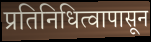
प्रतिनिधित्वापासून